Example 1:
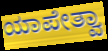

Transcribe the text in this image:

ಯಾಪೇತ್ವಾ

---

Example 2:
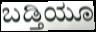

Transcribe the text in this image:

ಬಡ್ತಿಯೂ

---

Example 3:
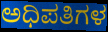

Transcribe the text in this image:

ಅಧಿಪತಿಗಳ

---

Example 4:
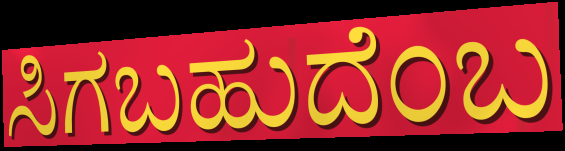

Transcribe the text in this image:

ಸಿಗಬಹುದೆಂಬ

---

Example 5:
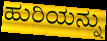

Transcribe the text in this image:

ಹುರಿಯನ್ನು